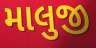
માલુજી